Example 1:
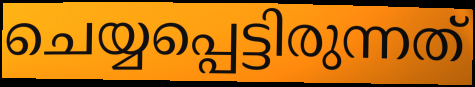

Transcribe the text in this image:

ചെയ്യപ്പെട്ടിരുന്നത്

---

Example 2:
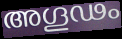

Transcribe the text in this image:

അഗൂഢം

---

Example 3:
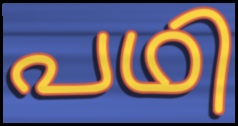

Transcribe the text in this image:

പഥി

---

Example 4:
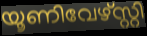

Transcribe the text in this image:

യൂണിവേഴ്സ്റ്റി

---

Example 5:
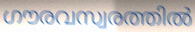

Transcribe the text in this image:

ഗൗരവസ്വരത്തിൽ